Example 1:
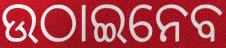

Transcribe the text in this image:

ଉଠାଇନେବ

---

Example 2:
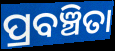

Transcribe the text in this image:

ପ୍ରବଞ୍ଚିତା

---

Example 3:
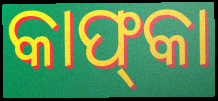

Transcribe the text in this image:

କାଫ୍‌କା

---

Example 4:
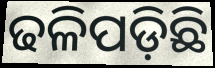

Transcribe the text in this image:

ଢଳିପଡ଼ିଛି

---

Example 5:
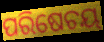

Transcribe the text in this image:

ପରିଷେଚୟ